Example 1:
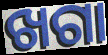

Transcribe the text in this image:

ଖଗା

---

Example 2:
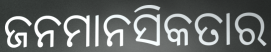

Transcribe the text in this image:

ଜନମାନସିକତାର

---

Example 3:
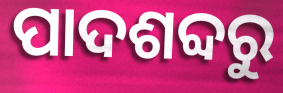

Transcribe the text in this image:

ପାଦଶବ୍ଦରୁ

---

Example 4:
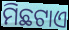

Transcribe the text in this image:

ମିଛଟାଏ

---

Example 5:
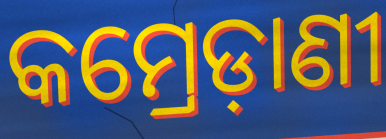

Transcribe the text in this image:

କମ୍ରେଡ଼ାଣୀ